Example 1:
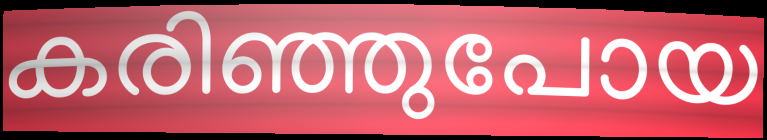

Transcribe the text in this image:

കരിഞ്ഞുപോയ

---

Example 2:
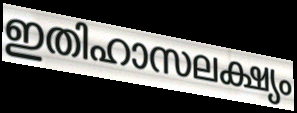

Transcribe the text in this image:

ഇതിഹാസലക്ഷ്യം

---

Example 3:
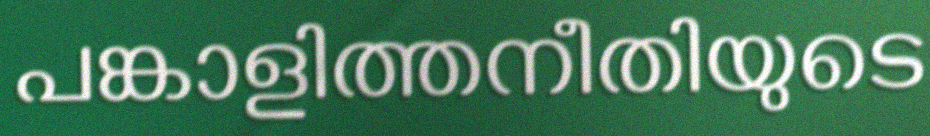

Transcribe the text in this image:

പങ്കാളിത്തനീതിയുടെ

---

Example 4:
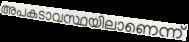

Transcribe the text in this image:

അപകടാവസ്ഥയിലാണെന്ന്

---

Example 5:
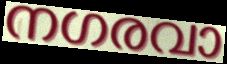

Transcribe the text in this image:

നഗരവാ